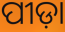
ପୀଡ଼ା